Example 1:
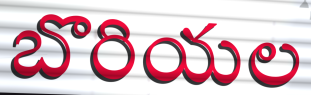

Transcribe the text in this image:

బొరియల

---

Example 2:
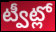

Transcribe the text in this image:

ట్వీట్లో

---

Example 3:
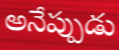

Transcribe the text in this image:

అనేప్పుడు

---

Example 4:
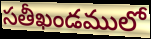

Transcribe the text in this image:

సతీఖండములో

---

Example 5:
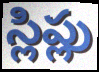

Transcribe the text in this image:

స్లిప్లు